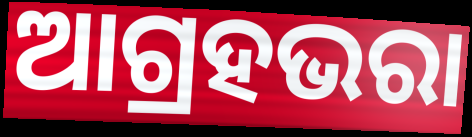
ଆଗ୍ରହଭରା